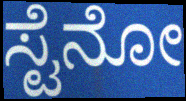
ಸ್ಟೆನೋ